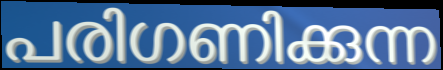
പരിഗണിക്കുന്ന